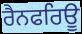
ਰੈਨਫਰਿਊ